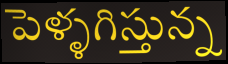
పెళ్ళగిస్తున్న